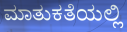
ಮಾತುಕತೆಯಲ್ಲಿ